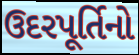
ઉદરપૂર્તિનો